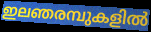
ഇലഞരമ്പുകളിൽ